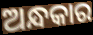
ଅନ୍ଧକାର